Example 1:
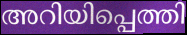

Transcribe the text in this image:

അറിയിപ്പെത്തി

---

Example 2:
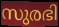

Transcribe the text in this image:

സുരഭി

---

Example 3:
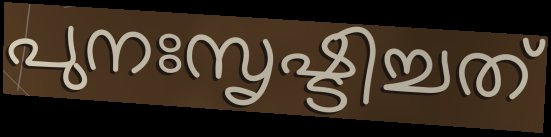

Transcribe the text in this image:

പുനഃസൃഷ്ടിച്ചത്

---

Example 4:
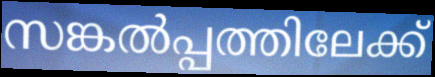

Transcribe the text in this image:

സങ്കൽപ്പത്തിലേക്ക്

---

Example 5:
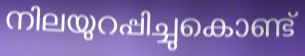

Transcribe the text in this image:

നിലയുറപ്പിച്ചുകൊണ്ട്